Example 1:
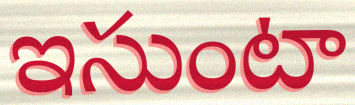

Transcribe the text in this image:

ఇసుంటా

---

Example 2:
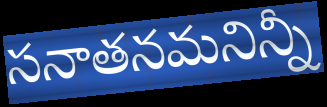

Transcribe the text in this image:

సనాతనమనిన్నీ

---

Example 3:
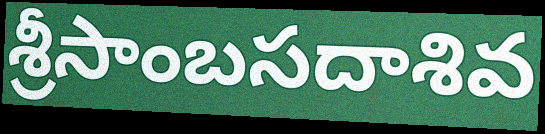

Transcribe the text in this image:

శ్రీసాంబసదాశివ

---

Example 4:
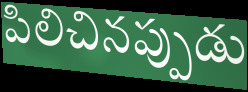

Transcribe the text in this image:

పిలిచినప్పుడు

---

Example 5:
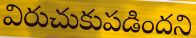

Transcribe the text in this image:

విరుచుకుపడిందని